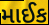
માઈક